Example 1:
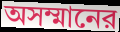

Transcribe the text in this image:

অসম্মানের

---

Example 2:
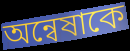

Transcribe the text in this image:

অন্বেষাকে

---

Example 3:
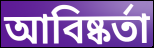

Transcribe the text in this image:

আবিষ্কর্তা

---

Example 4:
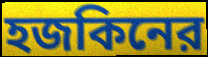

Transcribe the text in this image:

হজকিনের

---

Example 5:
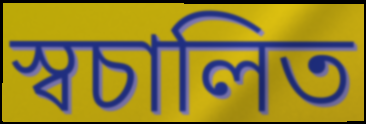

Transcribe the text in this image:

স্বচালিত